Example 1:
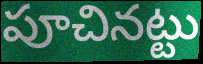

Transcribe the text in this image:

పూచినట్టు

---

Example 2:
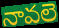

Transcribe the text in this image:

నావలె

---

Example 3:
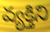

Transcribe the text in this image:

వ్యక్తిని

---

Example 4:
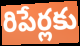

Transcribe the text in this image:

రిపేర్లకు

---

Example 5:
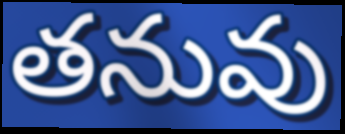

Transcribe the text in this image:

తనువు